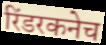
रिंडरकनेच